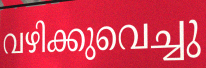
വഴിക്കുവെച്ചു